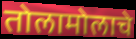
तोलामोलाचे